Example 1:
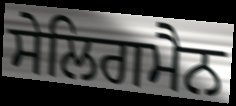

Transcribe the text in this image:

ਸੇਲਿਗਮੈਨ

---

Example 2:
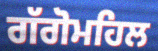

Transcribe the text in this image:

ਗੱਗੋਮਹਿਲ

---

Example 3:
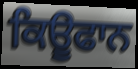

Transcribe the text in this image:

ਕਿਊਫਾਨ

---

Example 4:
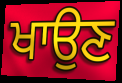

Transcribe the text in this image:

ਖਾਉਣ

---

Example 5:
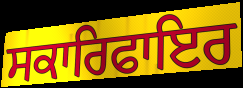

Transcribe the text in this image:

ਸਕਾਰਿਫਾਇਰ